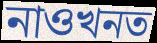
নাওখনত